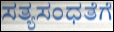
ಸತ್ಯಸಂಧತೆಗೆ